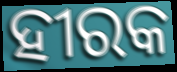
ହୀରକ